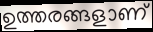
ഉത്തരങ്ങളാണ്